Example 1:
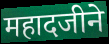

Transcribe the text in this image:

महादजीने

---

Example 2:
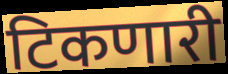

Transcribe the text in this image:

टिकणारी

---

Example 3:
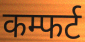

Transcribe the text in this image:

कम्फर्ट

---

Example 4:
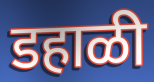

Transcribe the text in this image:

डहाळी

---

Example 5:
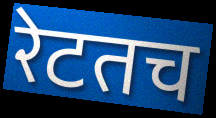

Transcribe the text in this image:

रेटतच